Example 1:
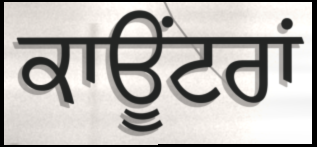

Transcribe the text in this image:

ਕਾਊਂਟਰਾਂ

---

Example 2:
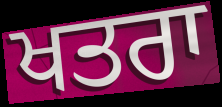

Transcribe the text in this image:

ਖਤਰਾ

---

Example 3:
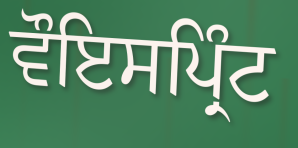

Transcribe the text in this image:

ਵੌਇਸਪ੍ਰਿੰਟ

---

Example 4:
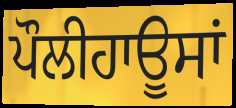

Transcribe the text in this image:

ਪੌਲੀਹਾਊਸਾਂ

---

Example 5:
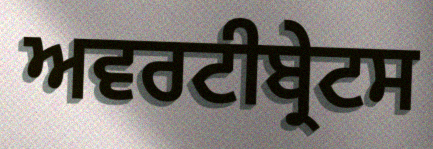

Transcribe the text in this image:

ਅਵਰਟੀਬ੍ਰੇਟਸ